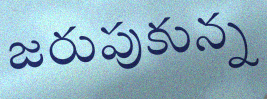
జరుపుకున్న